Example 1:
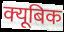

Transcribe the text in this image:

क्‍यूबिक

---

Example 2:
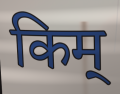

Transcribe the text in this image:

किम्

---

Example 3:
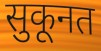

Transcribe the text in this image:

सुकूनत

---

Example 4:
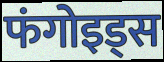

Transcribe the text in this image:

फंगोइड्स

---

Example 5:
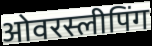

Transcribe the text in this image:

ओवरस्लीपिंग